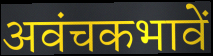
अवंचकभावें